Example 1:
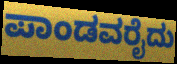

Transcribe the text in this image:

ಪಾಂಡವರೈದು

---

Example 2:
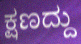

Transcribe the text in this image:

ಕ್ಷಣದ್ದು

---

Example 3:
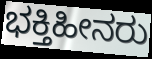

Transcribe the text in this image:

ಭಕ್ತಿಹೀನರು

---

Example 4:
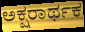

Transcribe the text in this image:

ಅಕ್ಷರಾರ್ಥಕ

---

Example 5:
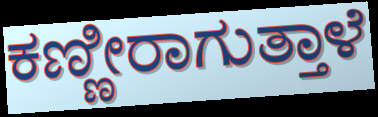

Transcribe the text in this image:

ಕಣ್ಣೀರಾಗುತ್ತಾಳೆ